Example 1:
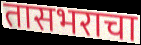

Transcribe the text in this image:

तासभराचा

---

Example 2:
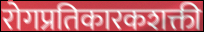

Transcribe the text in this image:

रोगप्रतिकारकशक्ती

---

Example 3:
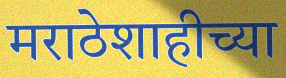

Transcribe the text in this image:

मराठेशाहीच्या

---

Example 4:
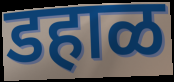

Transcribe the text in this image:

डहाळ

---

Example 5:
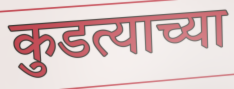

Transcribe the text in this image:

कुडत्याच्या